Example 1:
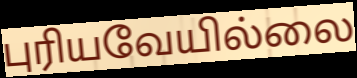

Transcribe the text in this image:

புரியவேயில்லை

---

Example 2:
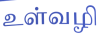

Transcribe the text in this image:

உள்வழி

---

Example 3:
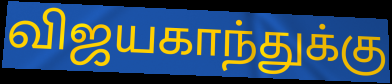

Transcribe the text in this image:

விஜயகாந்துக்கு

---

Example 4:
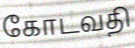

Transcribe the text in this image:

கோடவதி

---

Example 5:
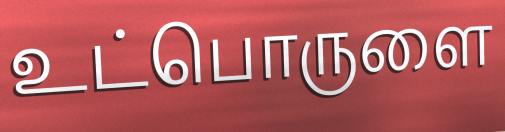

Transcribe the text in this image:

உட்பொருளை